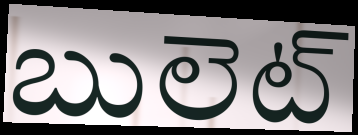
బులెట్